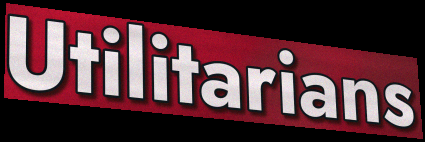
Utilitarians